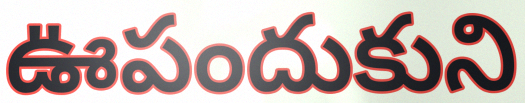
ఊపందుకుని